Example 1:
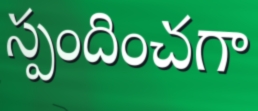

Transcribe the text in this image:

స్పందించగా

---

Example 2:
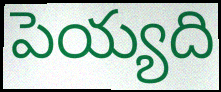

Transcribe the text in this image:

పెయ్యది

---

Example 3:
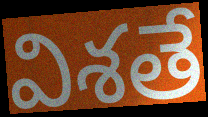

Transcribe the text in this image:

విశతే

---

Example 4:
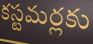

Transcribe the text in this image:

కస్టమర్లకు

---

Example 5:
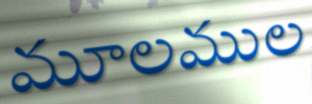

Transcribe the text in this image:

మూలముల